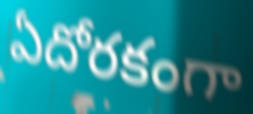
ఏదోరకంగా